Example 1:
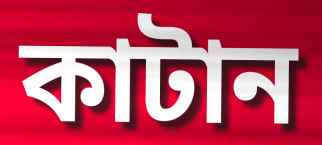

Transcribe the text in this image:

কাটান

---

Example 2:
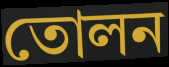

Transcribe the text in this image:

তোলন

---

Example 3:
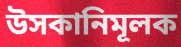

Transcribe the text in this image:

উসকানিমূলক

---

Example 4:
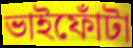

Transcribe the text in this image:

ভাইফোঁটা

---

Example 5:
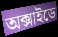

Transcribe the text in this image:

অক্সাইডে